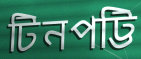
টিনপট্টি